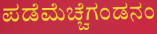
ಪಡೆಮೆಚ್ಚೆಗಂಡನಂ